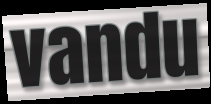
vandu